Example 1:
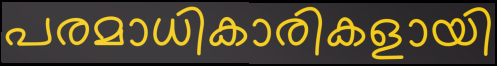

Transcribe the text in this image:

പരമാധികാരികളായി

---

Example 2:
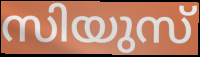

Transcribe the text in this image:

സിയുസ്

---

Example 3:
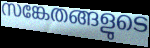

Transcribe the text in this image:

സങ്കേതങ്ങളുടെ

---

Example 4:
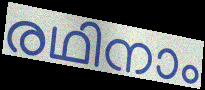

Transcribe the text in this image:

രഥിനാം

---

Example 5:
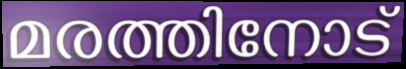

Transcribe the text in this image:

മരത്തിനോട്